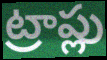
ట్రాప్లు